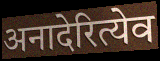
अनादेरित्येव